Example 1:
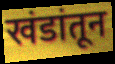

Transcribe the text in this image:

खंडांतून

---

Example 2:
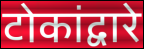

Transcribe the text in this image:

टोकांद्वारे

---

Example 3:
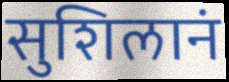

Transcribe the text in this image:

सुशिलानं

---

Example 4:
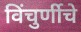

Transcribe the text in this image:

विंचुर्णीचे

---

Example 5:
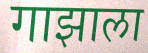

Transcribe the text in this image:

गाझाला